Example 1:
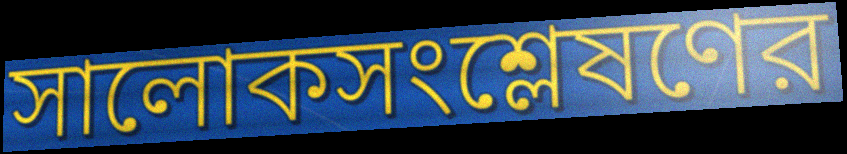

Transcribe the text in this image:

সালোকসংশ্লেষণের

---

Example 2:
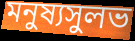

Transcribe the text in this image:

মনুষ্যসুলভ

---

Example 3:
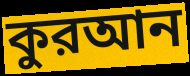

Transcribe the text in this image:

কুরআন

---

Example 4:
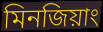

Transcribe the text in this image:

মিনজিয়াং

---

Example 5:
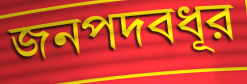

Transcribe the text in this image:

জনপদবধূর